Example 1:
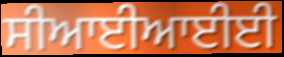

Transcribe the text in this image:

ਸੀਆਈਆਈਈ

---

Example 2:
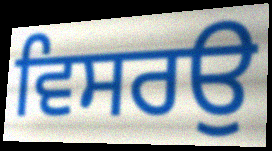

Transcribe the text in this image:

ਵਿਸਰਉ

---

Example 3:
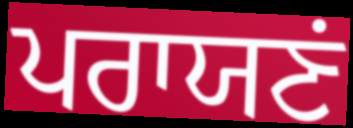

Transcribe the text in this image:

ਪਰਾਯਣਂ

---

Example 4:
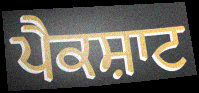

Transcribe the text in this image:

ਪੈਕਸ਼ਾਟ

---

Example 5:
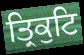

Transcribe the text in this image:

ਤ੍ਰਿਕੁਟਿ